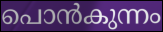
പൊൻകുന്നം